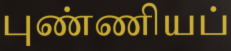
புண்ணியப்